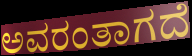
ಅವರಂತಾಗದೆ